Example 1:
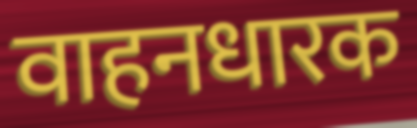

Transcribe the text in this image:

वाहनधारक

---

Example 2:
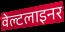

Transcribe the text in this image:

वेल्टलाइनर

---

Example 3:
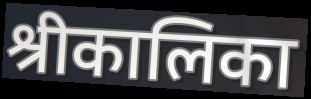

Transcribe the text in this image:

श्रीकालिका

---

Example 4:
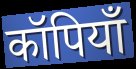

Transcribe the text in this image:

कॉपियाँ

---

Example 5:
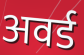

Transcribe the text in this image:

अवर्ड